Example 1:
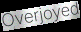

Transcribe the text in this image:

Overjoyed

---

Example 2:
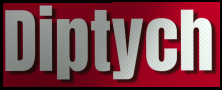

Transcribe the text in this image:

Diptych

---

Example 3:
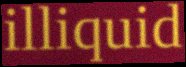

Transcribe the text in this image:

illiquid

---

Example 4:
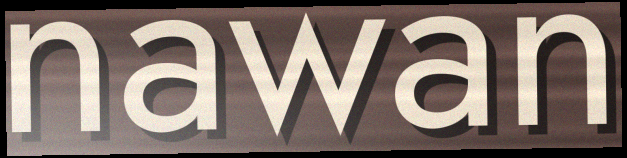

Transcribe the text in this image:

nawan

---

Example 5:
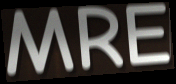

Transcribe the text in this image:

MRE